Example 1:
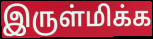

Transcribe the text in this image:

இருள்மிக்க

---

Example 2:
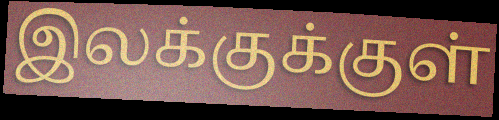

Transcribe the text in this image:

இலக்குக்குள்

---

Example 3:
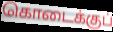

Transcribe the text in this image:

கொடைக்குப்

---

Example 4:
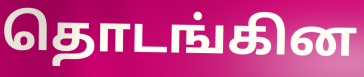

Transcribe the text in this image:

தொடங்கின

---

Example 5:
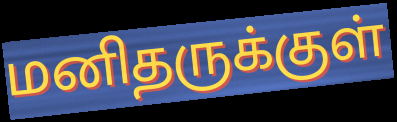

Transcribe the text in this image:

மனிதருக்குள்